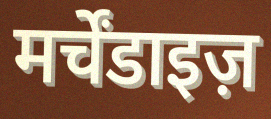
मर्चेंडाइज़